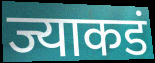
ज्याकडं